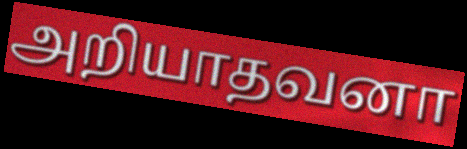
அறியாதவனா